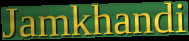
Jamkhandi